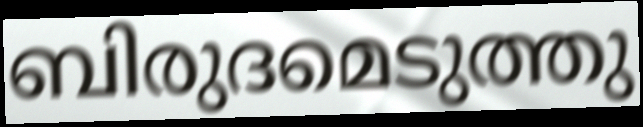
ബിരുദമെടുത്തു